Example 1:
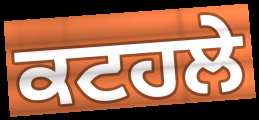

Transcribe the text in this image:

ਕਟਹਲੇ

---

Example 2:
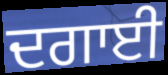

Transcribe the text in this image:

ਦਗਾਈ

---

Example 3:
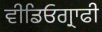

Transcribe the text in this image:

ਵੀਡਿਓਗ੍ਰਾਫੀ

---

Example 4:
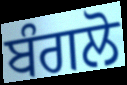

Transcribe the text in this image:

ਬੰਗਲੋ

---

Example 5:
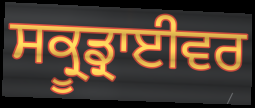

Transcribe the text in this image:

ਸਕ੍ਰੂਡ੍ਰਾਈਵਰ